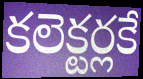
కలెక్టర్లకే